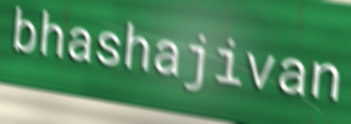
bhashajivan